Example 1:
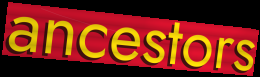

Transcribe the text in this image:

ancestors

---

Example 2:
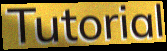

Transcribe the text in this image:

Tutorial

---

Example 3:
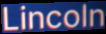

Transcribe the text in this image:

Lincoln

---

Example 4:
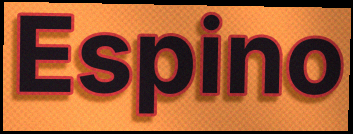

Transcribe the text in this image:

Espino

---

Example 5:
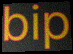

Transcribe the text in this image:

bip